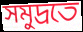
সমুদ্ৰতে